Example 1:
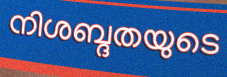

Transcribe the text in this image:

നിശബ്ദതയുടെ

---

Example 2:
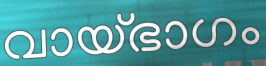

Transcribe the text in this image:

വായ്ഭാഗം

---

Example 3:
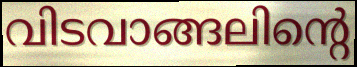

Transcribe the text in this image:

വിടവാങ്ങലിന്റെ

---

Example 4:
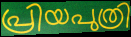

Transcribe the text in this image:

പ്രിയപുത്രി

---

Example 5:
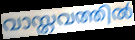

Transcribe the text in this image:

വാസ്തവത്തിൽ